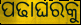
ପଢାଘରକୁ